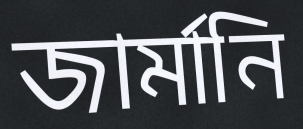
জার্মানি